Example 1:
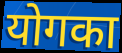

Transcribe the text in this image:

योगका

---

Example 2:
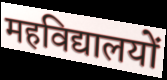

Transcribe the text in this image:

महविद्यालयों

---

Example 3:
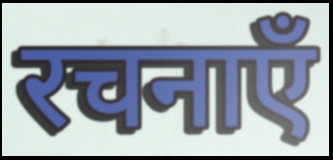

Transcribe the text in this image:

रचनाएँ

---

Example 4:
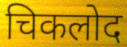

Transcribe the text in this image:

चिकलोद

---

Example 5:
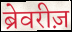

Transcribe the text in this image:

ब्रेवरीज़